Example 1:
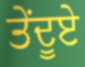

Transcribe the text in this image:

ਤੇਂਦੂਏ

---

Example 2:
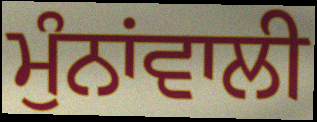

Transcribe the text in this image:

ਮੁੰਨਾਂਵਾਲੀ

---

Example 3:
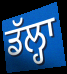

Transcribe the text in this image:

ਡੱਲ੍ਹਾ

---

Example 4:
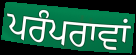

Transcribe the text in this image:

ਪਰੰਪਰਾਵਾਂ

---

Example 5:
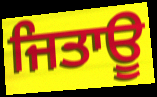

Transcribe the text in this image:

ਜਿਤਾਊ